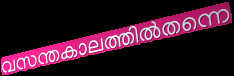
വസന്തകാലത്തിൽതന്നെ